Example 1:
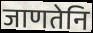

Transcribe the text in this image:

जाणतेनि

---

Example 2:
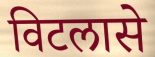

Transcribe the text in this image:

विटलासे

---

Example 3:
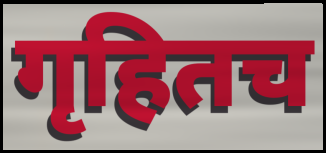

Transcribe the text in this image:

गृहितच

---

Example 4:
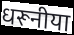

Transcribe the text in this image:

धरूनीया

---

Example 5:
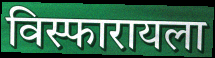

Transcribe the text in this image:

विस्फारायला